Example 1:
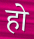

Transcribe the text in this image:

हो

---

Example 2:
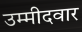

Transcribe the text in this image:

उम्‍मीदवार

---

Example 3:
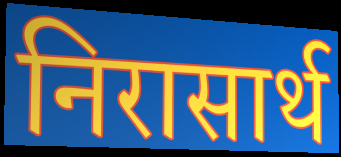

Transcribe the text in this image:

निरासार्थ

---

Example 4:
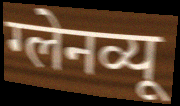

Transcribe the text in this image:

ग्लेनव्यू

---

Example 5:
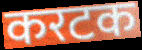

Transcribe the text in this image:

करटक